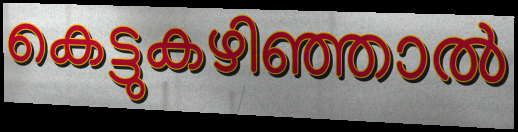
കെട്ടുകഴിഞ്ഞാൽ